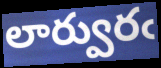
లార్వురఁ